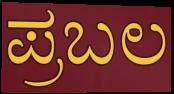
ಪ್ರಬಲ